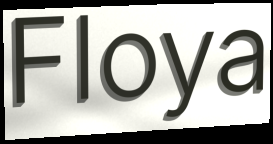
Floya